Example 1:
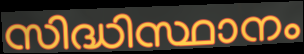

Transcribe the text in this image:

സിദ്ധിസ്ഥാനം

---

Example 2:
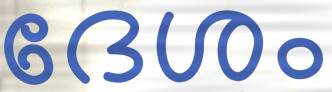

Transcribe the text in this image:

ദേശം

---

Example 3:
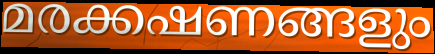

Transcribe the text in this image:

മരക്കഷണങ്ങളും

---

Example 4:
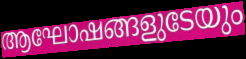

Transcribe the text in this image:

ആഘോഷങ്ങളുടേയും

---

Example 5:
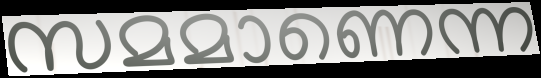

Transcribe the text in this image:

സമമാണെന്ന